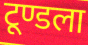
टूण्डला